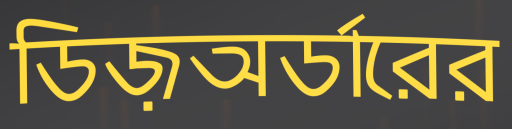
ডিজ়অর্ডারের